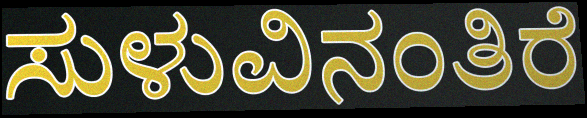
ಸುಳುವಿನಂತಿರೆ